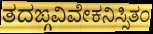
ತದಙ್ಗವಿವೇಕನಿಸ್ಸಿತಂ